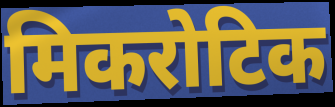
मिकरोटिक